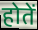
होतें